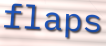
flaps